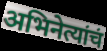
अभिनेत्यांचं